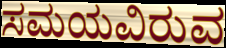
ಸಮಯವಿರುವ